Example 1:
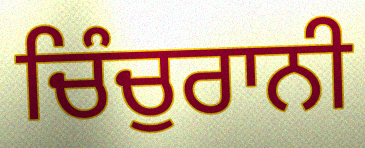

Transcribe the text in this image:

ਚਿੰਚੁਰਾਨੀ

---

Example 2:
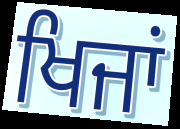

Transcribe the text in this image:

ਖਿਜਾਂ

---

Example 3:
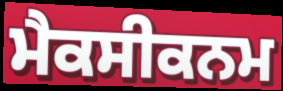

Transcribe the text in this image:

ਮੈਕਸੀਕਨਮ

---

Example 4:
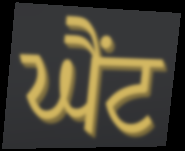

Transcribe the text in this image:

ਘੈਂਟ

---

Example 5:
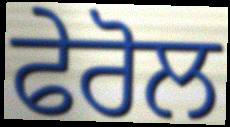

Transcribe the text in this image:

ਫੇਰੋਲ